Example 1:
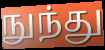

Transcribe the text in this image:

நுந்து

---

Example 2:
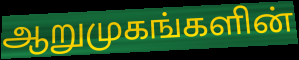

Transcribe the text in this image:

ஆறுமுகங்களின்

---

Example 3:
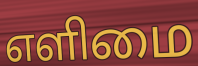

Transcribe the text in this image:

எளிமை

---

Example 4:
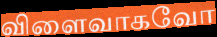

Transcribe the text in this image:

விளைவாகவோ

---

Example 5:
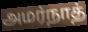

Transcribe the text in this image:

அமர்நாத்